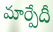
మార్పేదీ